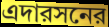
এদারসনের